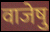
वाजेषु